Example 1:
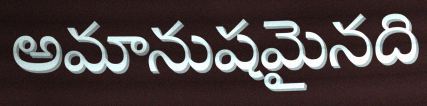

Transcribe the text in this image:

అమానుషమైనది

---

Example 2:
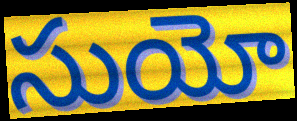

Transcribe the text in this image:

సుయో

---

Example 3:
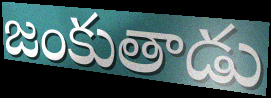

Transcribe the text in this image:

జంకుతాడు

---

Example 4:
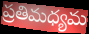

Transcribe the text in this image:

ప్రతిమధ్యమ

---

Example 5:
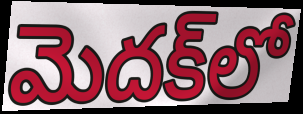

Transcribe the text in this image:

మెదక్‌లో